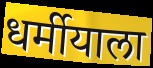
धर्मीयाला